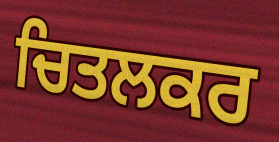
ਚਿਤਲਕਰ